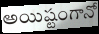
అయిష్టంగానో